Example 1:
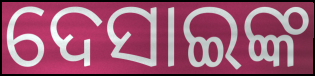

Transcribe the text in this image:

ଦେସାଇଙ୍କ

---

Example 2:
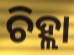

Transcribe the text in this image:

ଚିହ୍ଲା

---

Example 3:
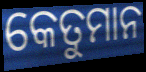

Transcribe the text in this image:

କେତୁମାନ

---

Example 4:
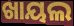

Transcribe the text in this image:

ଖାୟଲ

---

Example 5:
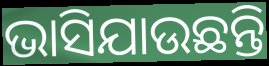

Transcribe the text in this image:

ଭାସିଯାଉଛନ୍ତି